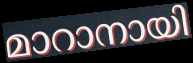
മാറാനായി